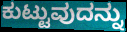
ಕುಟ್ಟುವುದನ್ನು